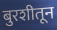
बुरशीतून